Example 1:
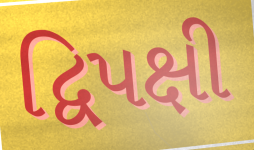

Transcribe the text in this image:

દ્વિપક્ષી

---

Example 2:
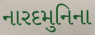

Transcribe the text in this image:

નારદમુનિના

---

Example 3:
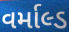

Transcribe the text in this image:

વર્માલ્ડ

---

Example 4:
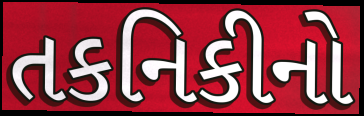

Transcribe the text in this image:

તકનિકીનો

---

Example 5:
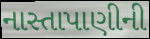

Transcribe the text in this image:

નાસ્તાપાણીની